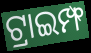
ଟ୍ରାଇମ୍ଫ